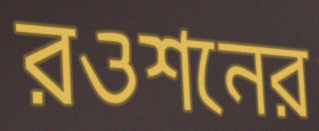
রওশনের